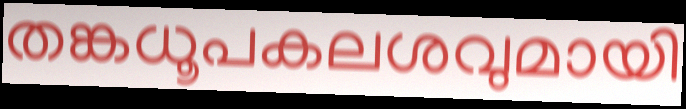
തങ്കധൂപകലശവുമായി